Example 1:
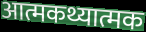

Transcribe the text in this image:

आत्मकथ्यात्मक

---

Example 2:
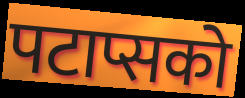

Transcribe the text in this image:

पटाप्सको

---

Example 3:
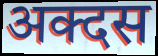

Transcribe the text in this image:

अक्दस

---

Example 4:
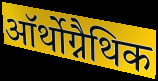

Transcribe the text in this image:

ऑर्थोग्नैथिक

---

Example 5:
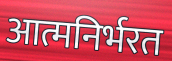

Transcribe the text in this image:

आत्मनिर्भरत